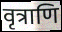
वृत्राणि